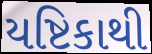
યષ્ટિકાથી